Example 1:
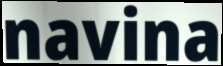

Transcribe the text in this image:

navina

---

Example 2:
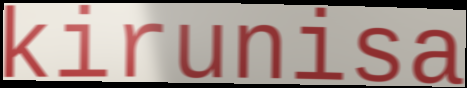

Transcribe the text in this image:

kirunisa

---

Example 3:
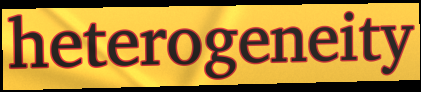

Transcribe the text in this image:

heterogeneity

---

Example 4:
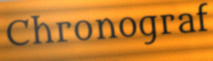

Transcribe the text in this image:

Chronograf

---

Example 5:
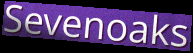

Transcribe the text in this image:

Sevenoaks